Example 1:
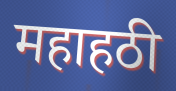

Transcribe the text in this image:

महाहठी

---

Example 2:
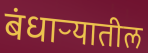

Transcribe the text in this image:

बंधाऱ्यातील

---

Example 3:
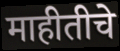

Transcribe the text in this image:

माहीतीचे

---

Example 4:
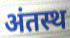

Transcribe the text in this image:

अंतस्थ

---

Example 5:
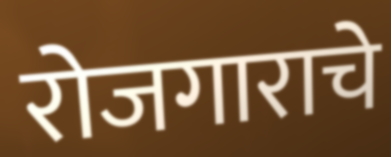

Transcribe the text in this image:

रोजगाराचे